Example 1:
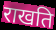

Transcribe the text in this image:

राखति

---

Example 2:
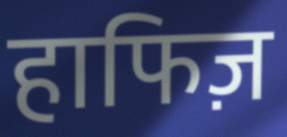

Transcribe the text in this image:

हाफिज़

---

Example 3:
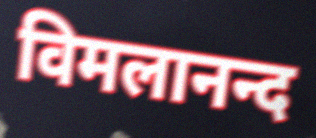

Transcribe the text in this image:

विमलानन्द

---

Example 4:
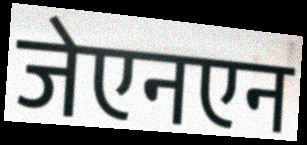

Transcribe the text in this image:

जेएनएन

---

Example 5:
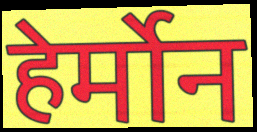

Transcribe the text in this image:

हेर्मोन